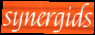
synergids